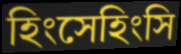
হিংসেহিংসি